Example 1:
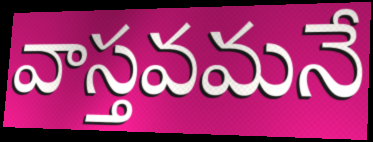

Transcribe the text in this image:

వాస్తవమనే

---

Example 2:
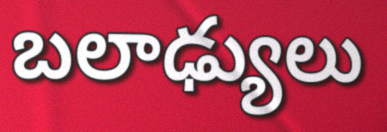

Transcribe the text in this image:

బలాఢ్యులు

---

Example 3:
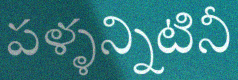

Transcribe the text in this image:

పళ్ళన్నిటినీ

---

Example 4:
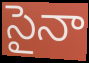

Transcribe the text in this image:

సైనా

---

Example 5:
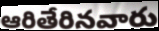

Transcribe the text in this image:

ఆరితేరినవారు